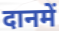
दानमें